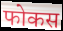
फोकस